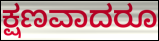
ಕ್ಷಣವಾದರೂ